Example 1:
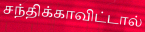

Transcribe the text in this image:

சந்திக்காவிட்டால்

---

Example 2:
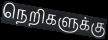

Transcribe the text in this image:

நெறிகளுக்கு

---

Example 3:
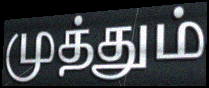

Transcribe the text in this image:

முத்தும்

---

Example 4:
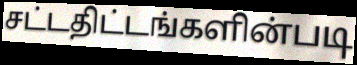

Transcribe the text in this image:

சட்டதிட்டங்களின்படி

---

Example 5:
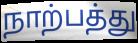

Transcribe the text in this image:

நாற்பத்து